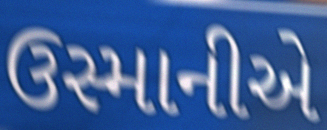
ઉસ્માનીએ